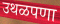
उथळपणा